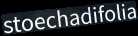
stoechadifolia